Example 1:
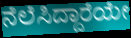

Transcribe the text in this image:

ನೆಲೆಸಿದ್ದಾರೆಯೇ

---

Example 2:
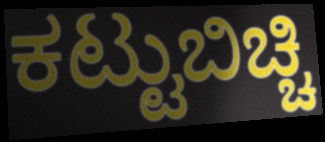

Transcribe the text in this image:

ಕಟ್ಟುಬಿಚ್ಚಿ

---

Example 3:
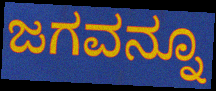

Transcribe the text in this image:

ಜಗವನ್ನೂ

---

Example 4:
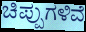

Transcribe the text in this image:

ಚಿಪ್ಪುಗಳಿವೆ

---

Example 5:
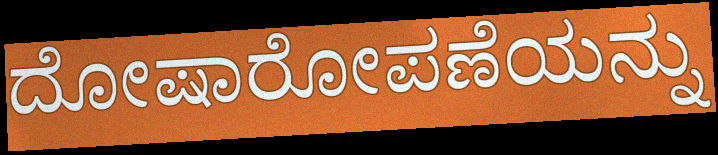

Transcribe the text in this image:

ದೋಷಾರೋಪಣೆಯನ್ನು